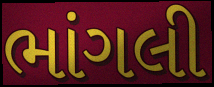
ભાંગલી